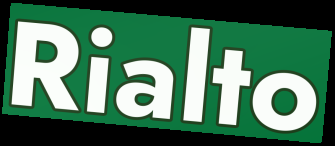
Rialto